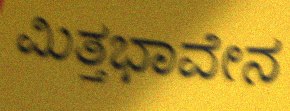
ಮಿತ್ತಭಾವೇನ